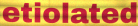
etiolated